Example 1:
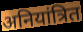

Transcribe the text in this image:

अनियांत्रित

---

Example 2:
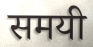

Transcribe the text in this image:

समयी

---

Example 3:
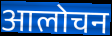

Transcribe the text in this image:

आलोचन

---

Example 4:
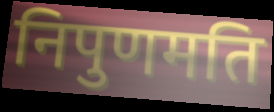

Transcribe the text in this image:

निपुणमति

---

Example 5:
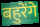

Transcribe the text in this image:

बहुरेंगे